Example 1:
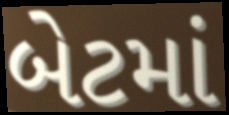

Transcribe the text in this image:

બેટમાં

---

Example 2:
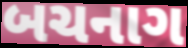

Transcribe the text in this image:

બચનાગ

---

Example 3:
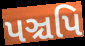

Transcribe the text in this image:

પઞ્ચપિ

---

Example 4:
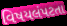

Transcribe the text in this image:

વિષયલંપટતા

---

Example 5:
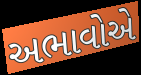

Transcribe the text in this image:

અભાવોએ